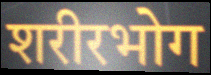
शरीरभोग